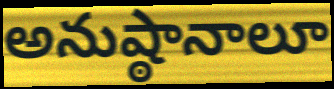
అనుష్ఠానాలూ